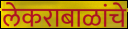
लेकराबाळांचे